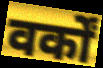
वर्कों